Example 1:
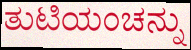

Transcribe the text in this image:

ತುಟಿಯಂಚನ್ನು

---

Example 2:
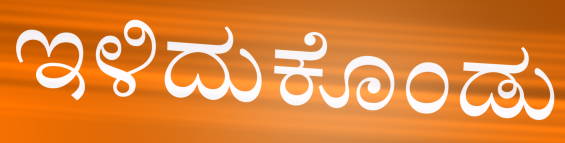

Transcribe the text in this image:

ಇಳಿದುಕೊಂಡು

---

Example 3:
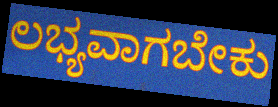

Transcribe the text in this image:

ಲಭ್ಯವಾಗಬೇಕು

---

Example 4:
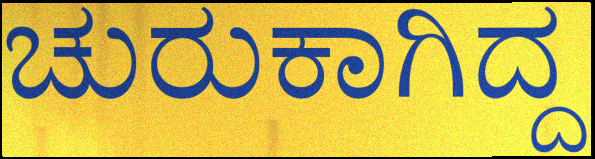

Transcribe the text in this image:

ಚುರುಕಾಗಿದ್ದ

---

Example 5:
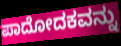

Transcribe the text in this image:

ಪಾದೋದಕವನ್ನು